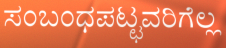
ಸಂಬಂಧಪಟ್ಟವರಿಗೆಲ್ಲ